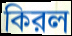
কিরল